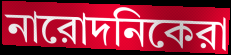
নারোদনিকেরা